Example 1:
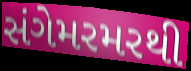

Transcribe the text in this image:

સંગેમરમરથી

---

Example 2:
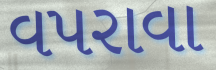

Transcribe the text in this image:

વપરાવા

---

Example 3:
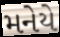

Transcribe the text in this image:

મનેયે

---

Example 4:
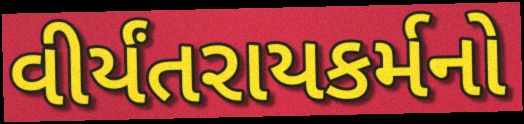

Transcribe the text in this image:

વીર્યંતરાયકર્મનો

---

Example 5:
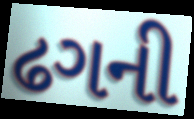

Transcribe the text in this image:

ઢગની